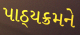
પાઠ્યક્રમને